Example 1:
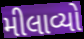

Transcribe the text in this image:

મીલાવ્યો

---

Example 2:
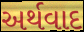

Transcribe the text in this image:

અર્થવાદ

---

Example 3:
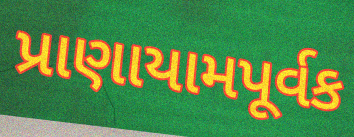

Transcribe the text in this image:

પ્રાણાયામપૂર્વક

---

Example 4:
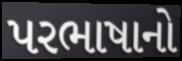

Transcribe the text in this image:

પરભાષાનો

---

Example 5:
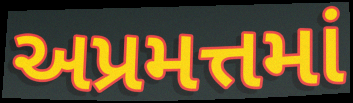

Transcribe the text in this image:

અપ્રમત્તમાં